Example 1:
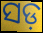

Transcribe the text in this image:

ସଡ଼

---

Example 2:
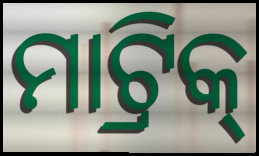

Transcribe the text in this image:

ମାଟ୍ରିକ୍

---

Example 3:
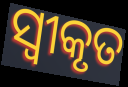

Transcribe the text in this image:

ସ୍ବୀକୃତ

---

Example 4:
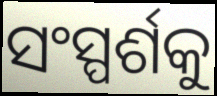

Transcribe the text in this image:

ସଂସ୍ପର୍ଶକୁ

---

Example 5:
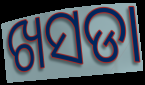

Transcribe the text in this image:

ଖସଡା